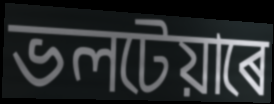
ভলটেয়াৰে